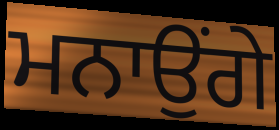
ਮਨਾਉਂਗੇ